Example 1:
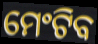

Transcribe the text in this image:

ମେଂଟିବ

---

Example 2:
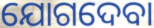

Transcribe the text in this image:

ଯୋଗଦେବା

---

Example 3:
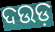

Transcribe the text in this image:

ଦଉଡ଼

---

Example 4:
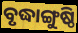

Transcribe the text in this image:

ବୃଦ୍ଧାଙ୍ଗୁଷ୍ଠି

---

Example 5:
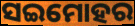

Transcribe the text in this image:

ସଇମୋହର